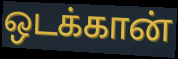
ஒடக்கான்